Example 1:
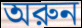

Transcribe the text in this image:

অরুন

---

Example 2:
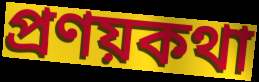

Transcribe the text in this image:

প্রণয়কথা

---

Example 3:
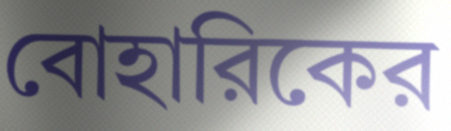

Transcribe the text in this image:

বোহারিকের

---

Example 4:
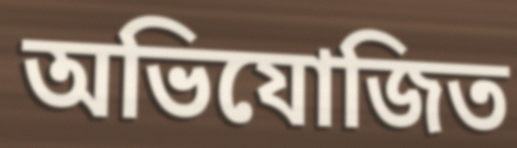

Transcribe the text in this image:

অভিযোজিত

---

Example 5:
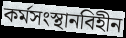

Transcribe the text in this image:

কর্মসংস্থানবিহীন